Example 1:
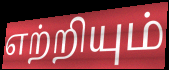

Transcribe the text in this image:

எற்றியும்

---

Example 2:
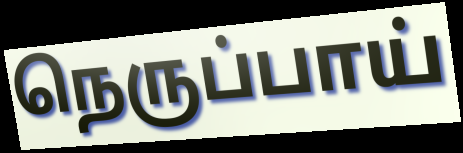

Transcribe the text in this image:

நெருப்பாய்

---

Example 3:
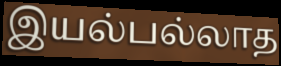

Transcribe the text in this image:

இயல்பல்லாத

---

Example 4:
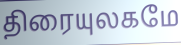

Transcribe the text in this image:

திரையுலகமே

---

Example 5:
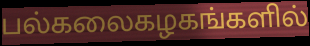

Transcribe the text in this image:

பல்கலைகழகங்களில்